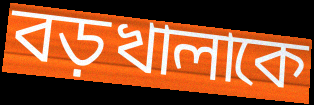
বড়খালাকে